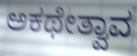
ಅಕಥೇತ್ವಾವ